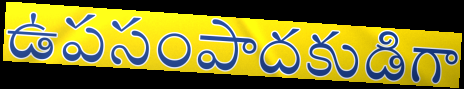
ఉపసంపాదకుడిగా